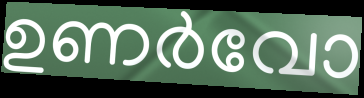
ഉണർവോ